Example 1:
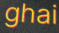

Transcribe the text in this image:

ghai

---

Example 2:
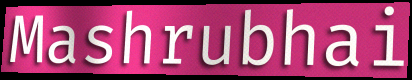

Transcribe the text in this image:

Mashrubhai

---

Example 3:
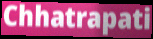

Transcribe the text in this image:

Chhatrapati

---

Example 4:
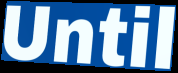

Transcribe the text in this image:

Until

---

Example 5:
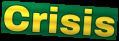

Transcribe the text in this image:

Crisis